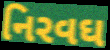
નિરવઘ